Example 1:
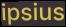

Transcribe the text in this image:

ipsius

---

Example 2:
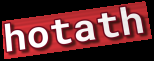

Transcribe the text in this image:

hotath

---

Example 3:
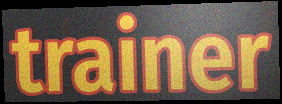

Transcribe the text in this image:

trainer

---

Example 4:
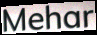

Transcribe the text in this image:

Mehar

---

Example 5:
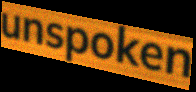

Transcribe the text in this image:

unspoken